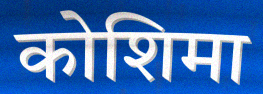
कोशिमा